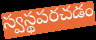
స్వస్థపరచడం